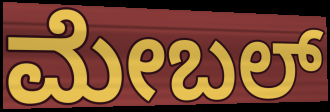
ಮೇಬಲ್